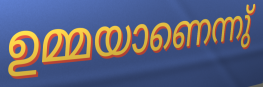
ഉമ്മയാണെന്നു്